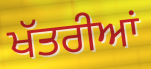
ਖੱਤਰੀਆਂ